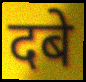
दबे